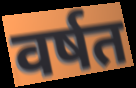
वर्षत